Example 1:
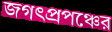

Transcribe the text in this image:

জগৎপ্রপঞ্চের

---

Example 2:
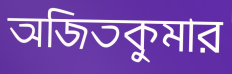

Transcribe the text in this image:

অজিতকুমার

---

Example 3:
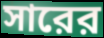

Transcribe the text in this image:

সারের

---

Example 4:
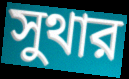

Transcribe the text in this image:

সুথার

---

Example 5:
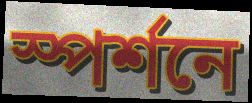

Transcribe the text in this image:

স্পর্শনে